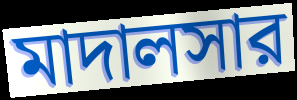
মাদালসার